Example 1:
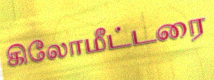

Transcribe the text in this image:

கிலோமீட்டரை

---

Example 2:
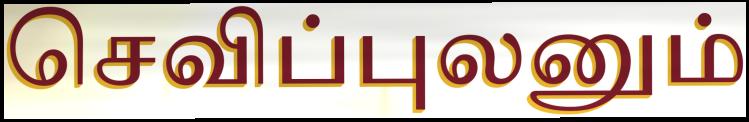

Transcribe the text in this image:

செவிப்புலனும்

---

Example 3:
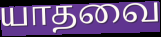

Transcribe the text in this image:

யாதவை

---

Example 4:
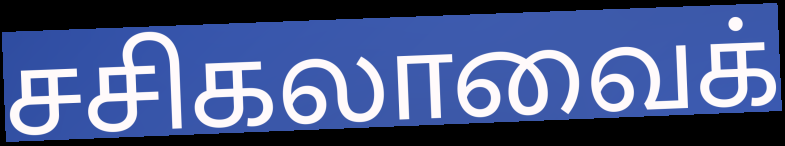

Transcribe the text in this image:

சசிகலாவைக்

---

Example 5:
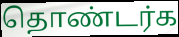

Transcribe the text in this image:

தொண்டர்க